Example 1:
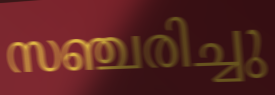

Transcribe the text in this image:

സഞ്ചരിച്ചു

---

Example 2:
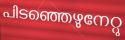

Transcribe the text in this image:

പിടഞ്ഞെഴുനേറ്റു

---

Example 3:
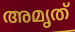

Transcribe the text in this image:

അമൃത്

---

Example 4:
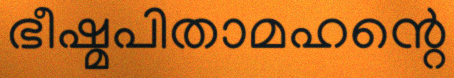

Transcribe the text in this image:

ഭീഷ്മപിതാമഹന്റെ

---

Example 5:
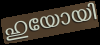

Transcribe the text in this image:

ഹുയോയി